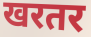
खरतर